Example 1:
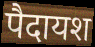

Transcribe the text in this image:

पैदायश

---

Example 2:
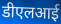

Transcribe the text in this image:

डीएलआई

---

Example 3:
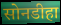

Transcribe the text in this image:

सोनडीहा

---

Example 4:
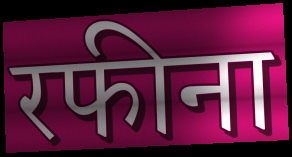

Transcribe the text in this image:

रफीना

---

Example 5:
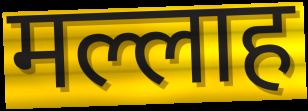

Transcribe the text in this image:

मल्‍लाह